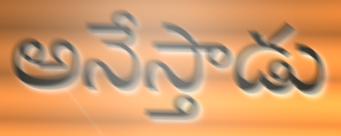
అనేస్తాడు